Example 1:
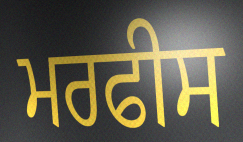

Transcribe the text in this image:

ਮਰਫੀਸ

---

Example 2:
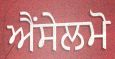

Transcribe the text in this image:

ਐਂਸੇਲਮੋ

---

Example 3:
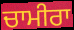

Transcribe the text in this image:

ਚਾਮੀਰਾ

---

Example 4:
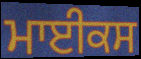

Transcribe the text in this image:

ਮਾਈਕਸ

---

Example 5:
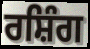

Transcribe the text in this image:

ਰਸ਼ਿੰਗ